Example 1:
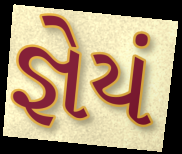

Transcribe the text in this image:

જ્ઞેયં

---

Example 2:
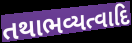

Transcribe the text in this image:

તથાભવ્યત્વાદિ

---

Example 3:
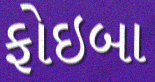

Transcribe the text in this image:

ફોઇબા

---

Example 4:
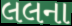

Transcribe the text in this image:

લલના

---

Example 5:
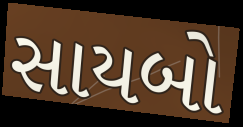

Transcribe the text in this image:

સાયબો